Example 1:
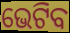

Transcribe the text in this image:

ଭେଟିବ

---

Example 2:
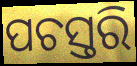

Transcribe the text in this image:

ପଚସ୍ତରି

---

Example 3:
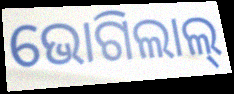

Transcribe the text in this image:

ଭୋଗିଲାଲ୍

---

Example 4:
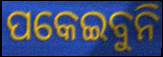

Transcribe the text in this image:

ପକେଇବୁନି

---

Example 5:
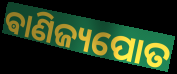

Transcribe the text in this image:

ଵାଣିଜ୍ୟପୋତ